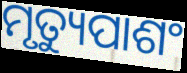
ମୃତ୍ୟୁପାଶଂ